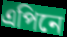
এপিনে